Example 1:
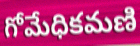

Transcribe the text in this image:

గోమేధికమణి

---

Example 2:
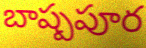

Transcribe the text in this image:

బాష్పపూర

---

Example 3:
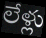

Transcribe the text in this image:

లేళ్లు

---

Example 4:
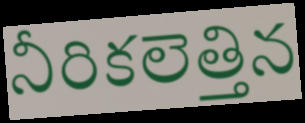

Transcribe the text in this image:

నీరికలెత్తిన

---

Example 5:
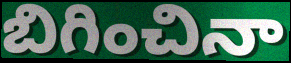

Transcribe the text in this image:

బిగించినా